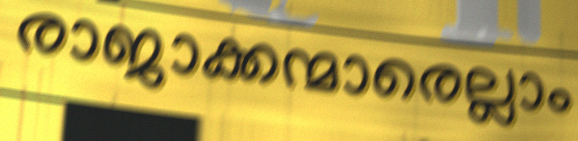
രാജാക്കന്മാരെല്ലാം